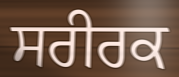
ਸਰੀਰਕ